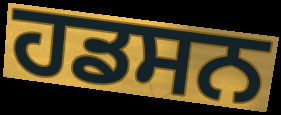
ਹਡਸਨ